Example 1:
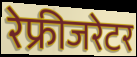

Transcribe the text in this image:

रेफ्रीजरेटर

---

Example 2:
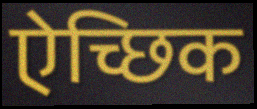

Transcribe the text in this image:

ऐच्छिक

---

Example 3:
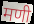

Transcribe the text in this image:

मणी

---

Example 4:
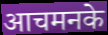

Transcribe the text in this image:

आचमनके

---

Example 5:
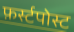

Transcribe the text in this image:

फ़र्स्टपोस्ट